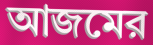
আজমের